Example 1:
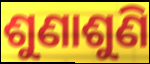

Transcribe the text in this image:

ଶୁଣାଶୁଣି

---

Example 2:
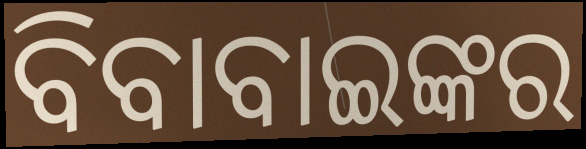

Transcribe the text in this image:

ବିବାବାଇଙ୍କର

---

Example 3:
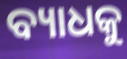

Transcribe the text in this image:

ବ୍ୟାଧକୁ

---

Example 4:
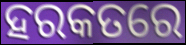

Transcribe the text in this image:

ହରକତରେ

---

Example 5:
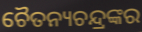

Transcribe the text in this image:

ଚୈତନ୍ୟଚନ୍ଦ୍ରଙ୍କର